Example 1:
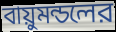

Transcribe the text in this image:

বায়ুমন্ডলের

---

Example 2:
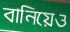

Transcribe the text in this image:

বানিয়েও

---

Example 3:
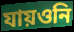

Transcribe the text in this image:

যায়ওনি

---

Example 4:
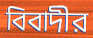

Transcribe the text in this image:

বিবাদীর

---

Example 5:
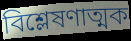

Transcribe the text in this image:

বিশ্লেষণাত্মক